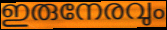
ഇരുനേരവും